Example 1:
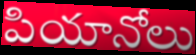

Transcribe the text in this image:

పియానోలు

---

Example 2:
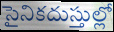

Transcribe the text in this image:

సైనికదుస్తుల్లో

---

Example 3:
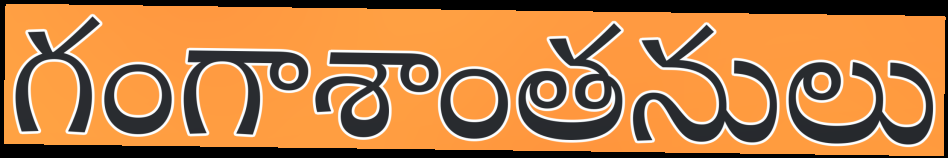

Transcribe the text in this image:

గంగాశాంతనులు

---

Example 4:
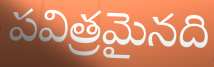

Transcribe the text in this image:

పవిత్రమైనది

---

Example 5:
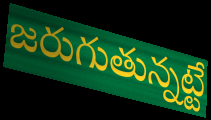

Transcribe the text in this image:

జరుగుతున్నట్టే